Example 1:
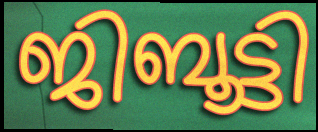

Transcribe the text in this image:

ജിബൂട്ടി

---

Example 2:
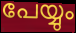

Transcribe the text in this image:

പേയ്യും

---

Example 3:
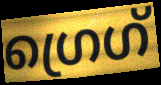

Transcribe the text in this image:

ഗ്രെഗ്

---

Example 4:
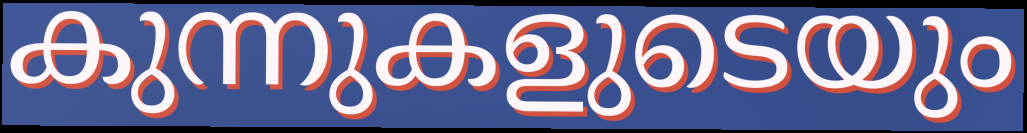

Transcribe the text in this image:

കുന്നുകളുടെയും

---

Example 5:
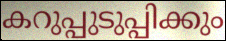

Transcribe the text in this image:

കറുപ്പുടുപ്പിക്കും